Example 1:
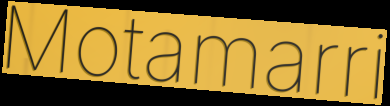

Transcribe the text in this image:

Motamarri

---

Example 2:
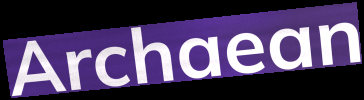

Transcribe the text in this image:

Archaean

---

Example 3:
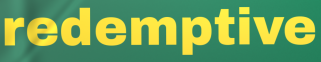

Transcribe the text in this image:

redemptive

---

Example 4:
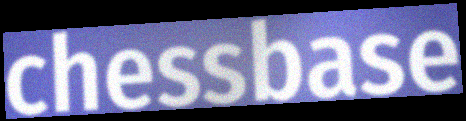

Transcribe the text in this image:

chessbase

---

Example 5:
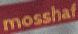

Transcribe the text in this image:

mosshaf